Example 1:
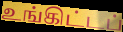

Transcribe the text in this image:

உங்கிட்டப்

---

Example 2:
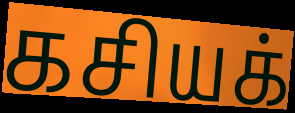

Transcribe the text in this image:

கசியக்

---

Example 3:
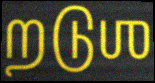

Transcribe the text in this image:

றடுஶ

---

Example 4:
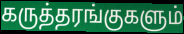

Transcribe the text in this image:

கருத்தரங்குகளும்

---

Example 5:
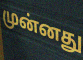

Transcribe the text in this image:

முன்னது